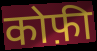
कोफ़ी